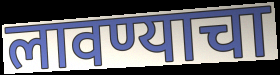
लावण्याचा